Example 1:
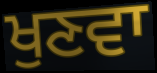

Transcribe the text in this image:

ਖੁਣਵਾ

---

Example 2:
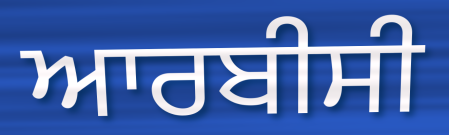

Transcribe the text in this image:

ਆਰਬੀਸੀ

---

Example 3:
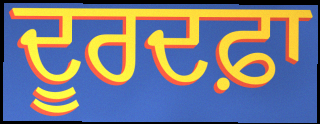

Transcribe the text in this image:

ਦੂਰਦਫ਼ਾ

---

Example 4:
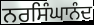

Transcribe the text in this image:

ਨਰਸਿੰਘਾਨੰਦ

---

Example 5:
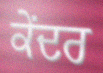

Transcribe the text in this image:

ਕੇੰਦਰ